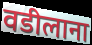
वडीलाना